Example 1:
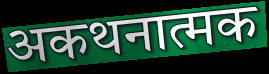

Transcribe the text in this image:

अकथनात्मक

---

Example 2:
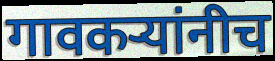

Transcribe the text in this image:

गावकऱ्यांनीच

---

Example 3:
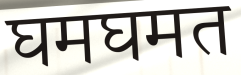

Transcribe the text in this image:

घमघमत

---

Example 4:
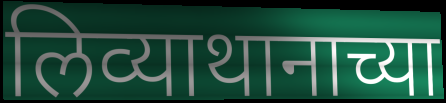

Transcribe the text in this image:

लिव्याथानाच्या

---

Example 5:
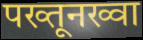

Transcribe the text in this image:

पख्तूनख्वा